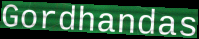
Gordhandas